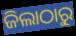
ଜିଲାଠାରୁ